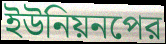
ইউনিয়নপের